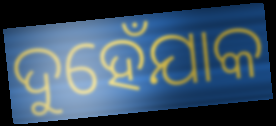
ଦୁହେଁଯାକ